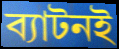
ব্যাটনই